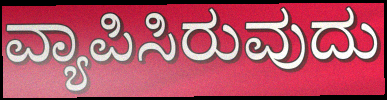
ವ್ಯಾಪಿಸಿರುವುದು